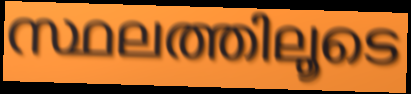
സ്ഥലത്തിലൂടെ